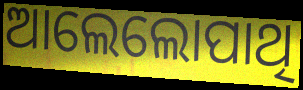
ଆଲେଲୋପାଥି